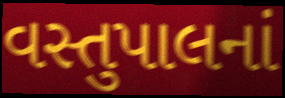
વસ્તુપાલનાં